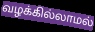
வழக்கில்லாமல்